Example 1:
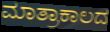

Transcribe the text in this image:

ಮಾತ್ರಾಕಾಲದ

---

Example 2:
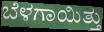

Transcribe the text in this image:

ಬೆಳಗಾಯಿತ್ತು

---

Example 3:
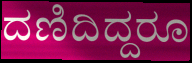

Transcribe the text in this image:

ದಣಿದಿದ್ದರೂ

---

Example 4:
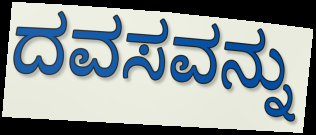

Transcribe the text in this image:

ದವಸವನ್ನು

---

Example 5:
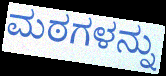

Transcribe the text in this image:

ಮಠಗಳನ್ನು